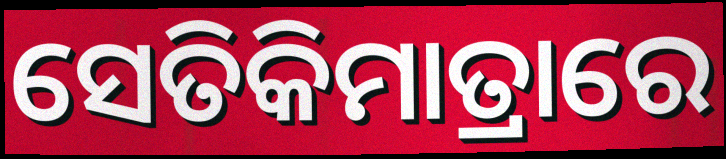
ସେତିକିମାତ୍ରାରେ